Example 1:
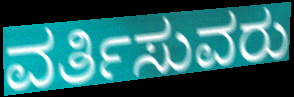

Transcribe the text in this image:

ವರ್ತಿಸುವರು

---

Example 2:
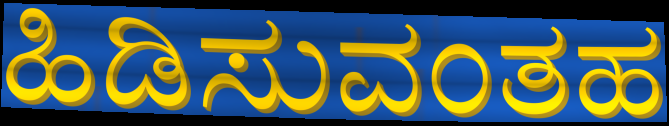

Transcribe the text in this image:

ಹಿಡಿಸುವಂತಹ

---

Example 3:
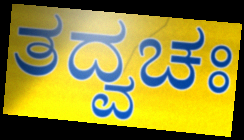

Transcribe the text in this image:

ತದ್ವಚಃ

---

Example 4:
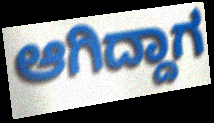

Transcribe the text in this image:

ಆಗಿದ್ದಾಗ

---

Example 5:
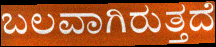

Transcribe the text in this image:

ಬಲವಾಗಿರುತ್ತದೆ